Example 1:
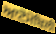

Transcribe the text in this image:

ਆਟੋਮੋਬਿਲੀ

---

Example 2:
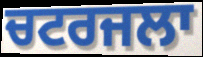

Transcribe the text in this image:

ਚਟਰਜਲਾ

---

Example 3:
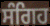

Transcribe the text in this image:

ਸੰਗਿਹ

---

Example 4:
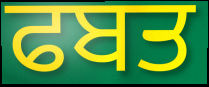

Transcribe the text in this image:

ਫਬਤ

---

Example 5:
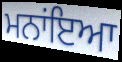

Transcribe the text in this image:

ਮਨਾਂਇਆ